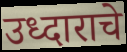
उध्दाराचे